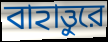
বাহাত্তুরে